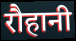
रौहानी